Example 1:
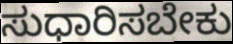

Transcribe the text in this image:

ಸುಧಾರಿಸಬೇಕು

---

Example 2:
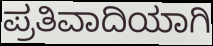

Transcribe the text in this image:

ಪ್ರತಿವಾದಿಯಾಗಿ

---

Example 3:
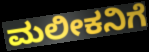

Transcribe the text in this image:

ಮಲೀಕನಿಗೆ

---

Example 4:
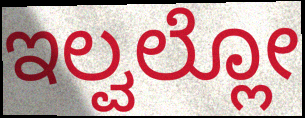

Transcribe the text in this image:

ಇಲ್ವಲ್ಲೋ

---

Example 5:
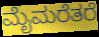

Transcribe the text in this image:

ಮೈಮರೆತರೆ